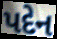
પદેન